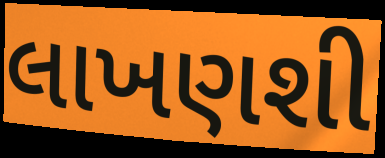
લાખણશી